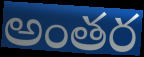
అంతర